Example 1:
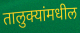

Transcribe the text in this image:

तालुक्यांमधील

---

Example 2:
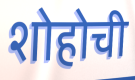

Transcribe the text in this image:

शोहोची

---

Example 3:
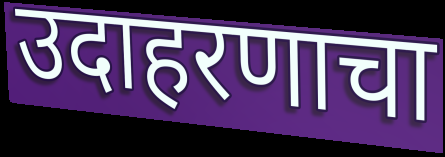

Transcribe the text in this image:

उदाहरणाचा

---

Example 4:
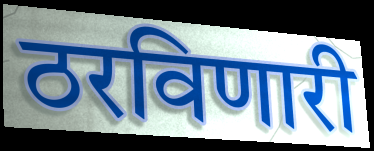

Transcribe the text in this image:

ठरविणारी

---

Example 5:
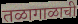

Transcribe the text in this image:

तळागाळाची